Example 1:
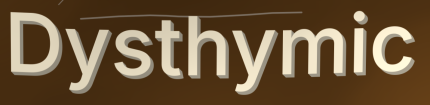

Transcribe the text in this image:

Dysthymic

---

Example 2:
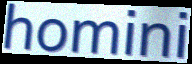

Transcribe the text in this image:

homini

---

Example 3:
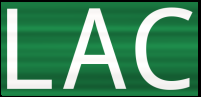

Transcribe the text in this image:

LAC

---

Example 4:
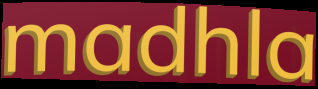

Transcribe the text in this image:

madhla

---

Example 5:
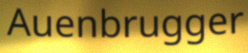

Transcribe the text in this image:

Auenbrugger